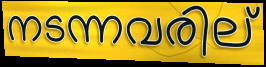
നടന്നവരില്